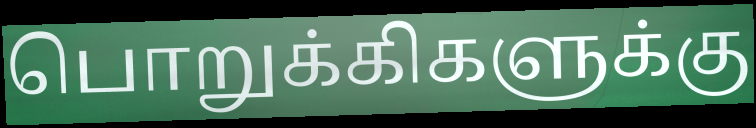
பொறுக்கிகளுக்கு